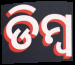
ଡିମ୍ଵ